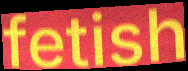
fetish